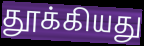
தூக்கியது